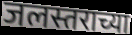
जलस्तराच्या